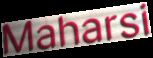
Maharsi